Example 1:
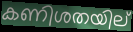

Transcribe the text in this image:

കണിശതയില്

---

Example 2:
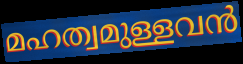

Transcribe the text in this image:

മഹത്വമുള്ളവൻ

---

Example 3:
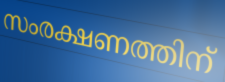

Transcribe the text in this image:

സംരക്ഷണത്തിന്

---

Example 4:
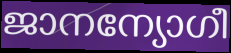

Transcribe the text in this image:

ജാനന്യോഗീ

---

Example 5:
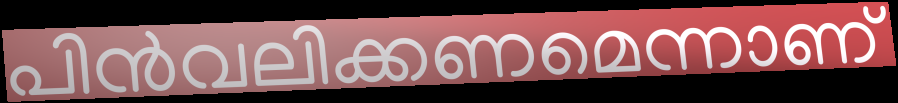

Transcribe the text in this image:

പിൻവലിക്കണമെന്നാണ്